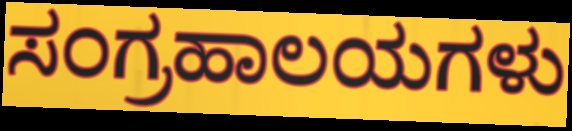
ಸಂಗ್ರಹಾಲಯಗಳು